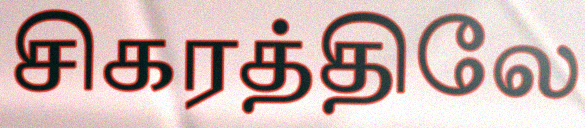
சிகரத்திலே